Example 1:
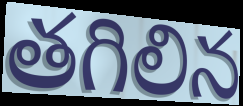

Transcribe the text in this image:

తగిలిన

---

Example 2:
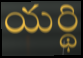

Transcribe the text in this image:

యర్థి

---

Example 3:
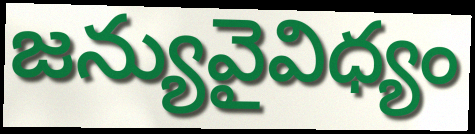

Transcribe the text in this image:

జన్యువైవిధ్యం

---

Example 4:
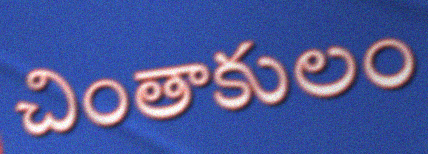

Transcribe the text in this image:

చింతాకులం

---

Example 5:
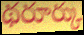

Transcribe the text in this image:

థరూర్కు